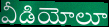
వీడియోలూ